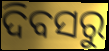
ଦିବସରୁ